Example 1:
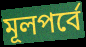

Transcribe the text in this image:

মূলপর্বে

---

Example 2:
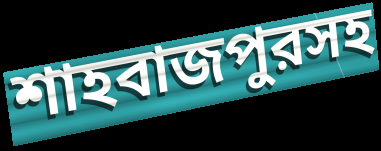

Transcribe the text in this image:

শাহবাজপুরসহ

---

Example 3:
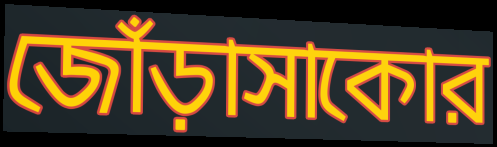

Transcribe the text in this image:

জোঁড়াসাকোর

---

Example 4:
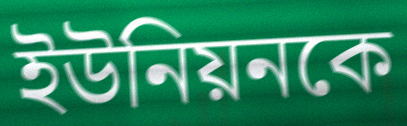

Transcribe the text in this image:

ইউনিয়নকে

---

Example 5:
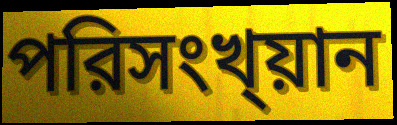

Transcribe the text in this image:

পরিসংখ্য়ান